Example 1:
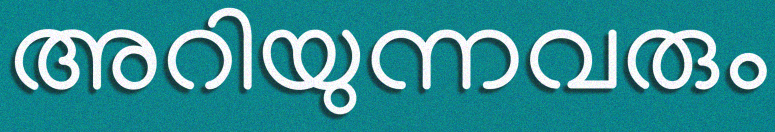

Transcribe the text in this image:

അറിയുന്നവരും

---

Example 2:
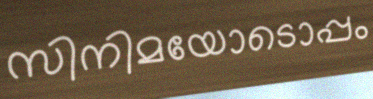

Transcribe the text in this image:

സിനിമയോടൊപ്പം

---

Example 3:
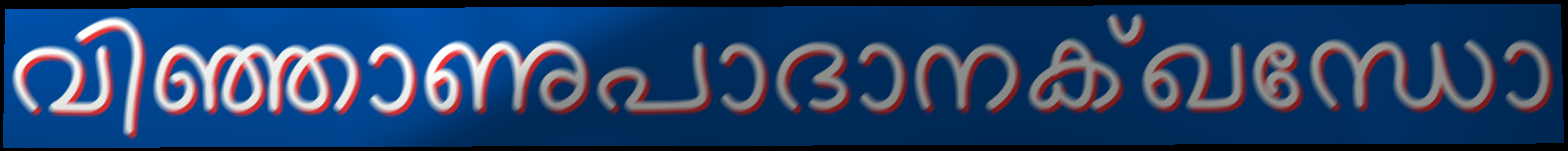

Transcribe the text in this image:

വിഞ്ഞാണുപാദാനക്ഖന്ധോ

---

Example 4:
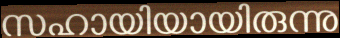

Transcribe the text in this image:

സഹായിയായിരുന്നു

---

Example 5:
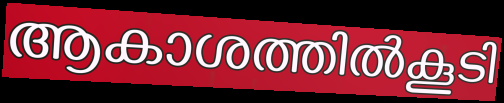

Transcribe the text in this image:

ആകാശത്തിൽകൂടി